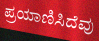
ಪ್ರಯಾಣಿಸಿದೆವು